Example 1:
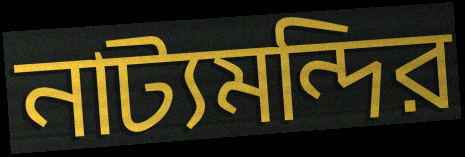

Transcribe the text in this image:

নাট্যমন্দির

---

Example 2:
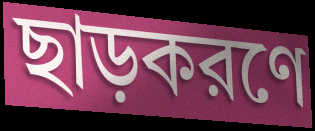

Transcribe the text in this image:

ছাড়করণে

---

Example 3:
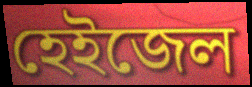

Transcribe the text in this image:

হেইজেল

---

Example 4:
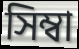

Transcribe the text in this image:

সিম্বা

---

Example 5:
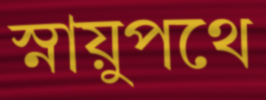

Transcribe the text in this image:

স্নায়ুপথে